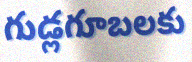
గుడ్లగూబలకు